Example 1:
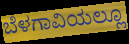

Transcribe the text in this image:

ಬೆಳಗಾವಿಯಲ್ಲೂ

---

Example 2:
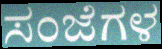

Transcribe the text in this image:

ಸಂಜೆಗಳ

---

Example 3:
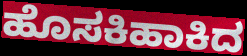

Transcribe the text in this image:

ಹೊಸಕಿಹಾಕಿದ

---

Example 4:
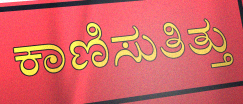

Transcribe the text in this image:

ಕಾಣಿಸುತಿತ್ತು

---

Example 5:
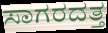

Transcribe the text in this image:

ಸಾಗರದತ್ತ